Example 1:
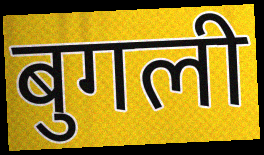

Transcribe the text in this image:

बुगली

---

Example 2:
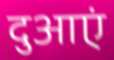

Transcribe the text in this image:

दुआएं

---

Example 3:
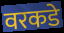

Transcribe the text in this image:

वरकडे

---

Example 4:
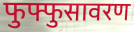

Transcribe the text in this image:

फुफ्फुसावरण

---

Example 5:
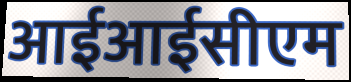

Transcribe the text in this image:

आईआईसीएम